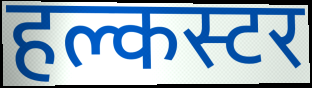
हल्कस्टर